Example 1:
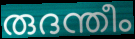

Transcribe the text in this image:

രുദന്തീം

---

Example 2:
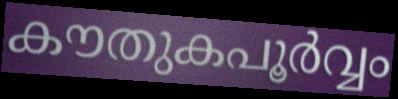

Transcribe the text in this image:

കൗതുകപൂർവ്വം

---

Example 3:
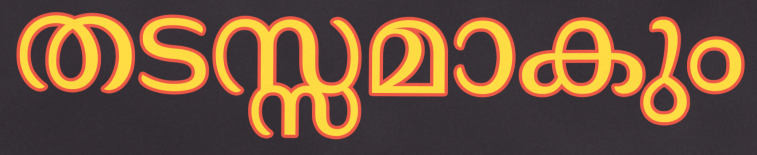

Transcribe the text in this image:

തടസ്സമാകും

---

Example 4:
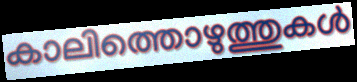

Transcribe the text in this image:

കാലിത്തൊഴുത്തുകൾ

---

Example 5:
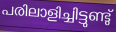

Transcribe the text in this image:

പരിലാളിച്ചിട്ടുണ്ടു്